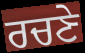
ਰਚਣੇ